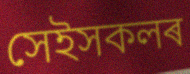
সেইসকলৰ